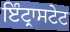
ਇੰਟ੍ਰਾਸਟੇਟ